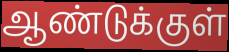
ஆண்டுக்குள்